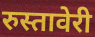
रुस्तावेरी